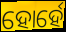
ହୋର୍ହେ